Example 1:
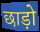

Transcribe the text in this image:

छाड़ो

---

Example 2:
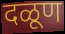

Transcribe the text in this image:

दळूण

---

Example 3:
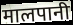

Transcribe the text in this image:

मालपानी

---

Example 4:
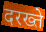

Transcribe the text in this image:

दरख्ते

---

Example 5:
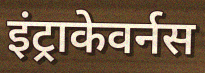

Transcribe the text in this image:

इंट्राकेवर्नस